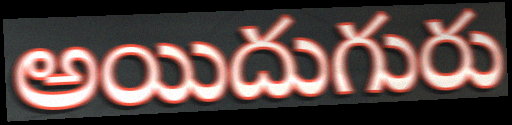
అయిదుగురు